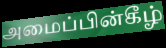
அமைப்பின்கீழ்